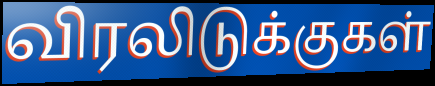
விரலிடுக்குகள்